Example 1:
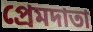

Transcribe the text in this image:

প্রেমদাতা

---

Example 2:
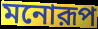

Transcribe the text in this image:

মনোরূপ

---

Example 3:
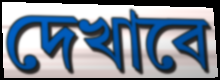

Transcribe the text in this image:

দেখাবে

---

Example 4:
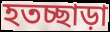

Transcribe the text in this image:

হতচ্ছাড়া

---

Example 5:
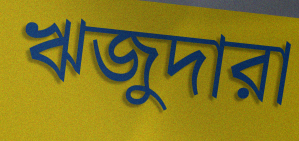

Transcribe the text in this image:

ঋজুদারা